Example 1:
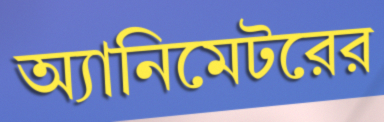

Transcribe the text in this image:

অ্যানিমেটরের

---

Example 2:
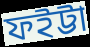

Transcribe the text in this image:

ফইট্টা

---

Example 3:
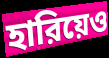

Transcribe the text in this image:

হারিয়েও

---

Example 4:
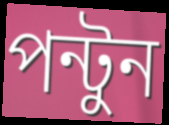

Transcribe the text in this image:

পন্টুন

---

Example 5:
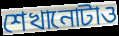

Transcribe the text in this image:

শেখানোটাও